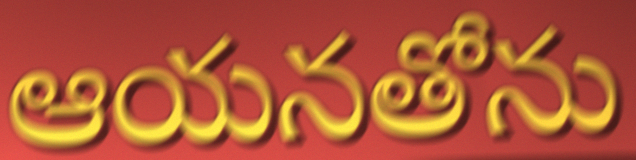
ఆయనతోను